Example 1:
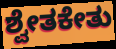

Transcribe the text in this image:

ಶ್ವೇತಕೇತು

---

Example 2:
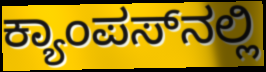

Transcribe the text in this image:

ಕ್ಯಾಂಪಸ್‌ನಲ್ಲಿ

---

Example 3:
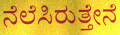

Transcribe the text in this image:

ನೆಲೆಸಿರುತ್ತೇನೆ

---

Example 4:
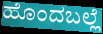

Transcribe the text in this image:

ಹೊಂದಬಲ್ಲೆ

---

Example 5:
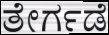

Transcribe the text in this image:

ತೇರ್ಗಡೆ